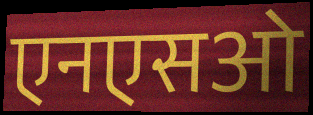
एनएसओ